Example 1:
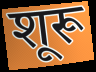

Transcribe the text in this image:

शूरू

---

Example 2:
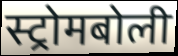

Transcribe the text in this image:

स्ट्रोमबोली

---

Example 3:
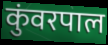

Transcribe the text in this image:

कुंवरपाल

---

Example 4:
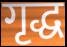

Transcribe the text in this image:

गृद्ध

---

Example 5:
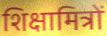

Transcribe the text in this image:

शिक्षामित्रों